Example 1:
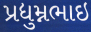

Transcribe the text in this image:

પ્રદ્યુમ્નભાઇ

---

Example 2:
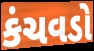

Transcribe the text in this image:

કંચવડો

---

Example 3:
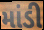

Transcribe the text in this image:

માંડી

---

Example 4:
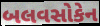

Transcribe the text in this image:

બલવસોકેન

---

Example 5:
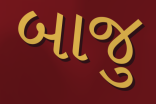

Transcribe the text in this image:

બાજુ